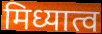
मिध्यात्व